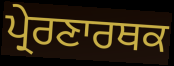
ਪ੍ਰੇਰਣਾਰਥਕ